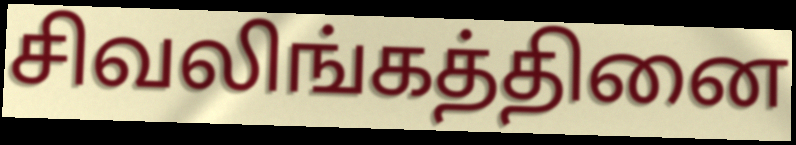
சிவலிங்கத்தினை